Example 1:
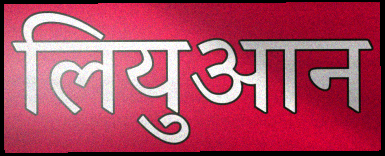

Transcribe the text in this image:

लियुआन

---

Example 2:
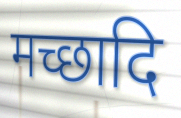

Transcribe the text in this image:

मच्छादि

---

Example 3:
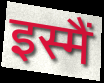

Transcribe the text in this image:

इस्मैं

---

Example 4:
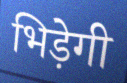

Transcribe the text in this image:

भिड़ेगी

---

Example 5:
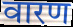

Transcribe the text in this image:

वारण